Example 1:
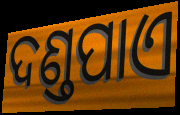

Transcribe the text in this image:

ଦଣ୍ଡପାଏ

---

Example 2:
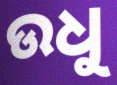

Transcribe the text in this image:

ଉଧୁ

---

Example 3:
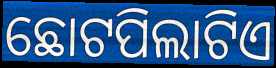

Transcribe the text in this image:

ଛୋଟପିଲାଟିଏ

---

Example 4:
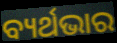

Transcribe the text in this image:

ବ୍ୟର୍ଥଭାର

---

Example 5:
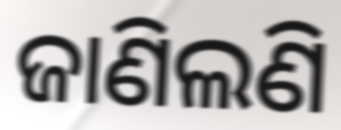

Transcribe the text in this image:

ଜାଣିଲଣି